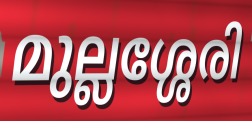
മുല്ലശ്ശേരി